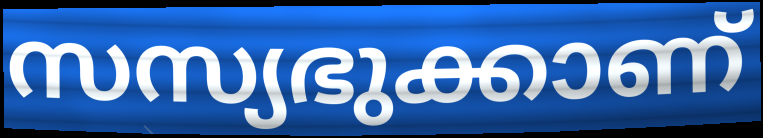
സസ്യഭുക്കാണ്